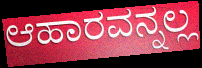
ಆಹಾರವನ್ನಲ್ಲ